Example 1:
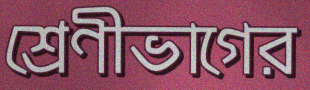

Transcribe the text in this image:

শ্রেণীভাগের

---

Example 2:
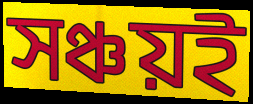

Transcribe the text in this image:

সঞ্চয়ই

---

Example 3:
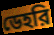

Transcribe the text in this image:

ডেহরি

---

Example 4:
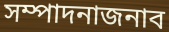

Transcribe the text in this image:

সম্পাদনাজনাব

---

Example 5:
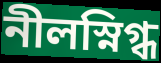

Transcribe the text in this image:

নীলস্নিগ্ধ